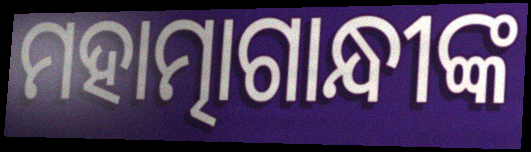
ମହାତ୍ମାଗାନ୍ଧୀଙ୍କ